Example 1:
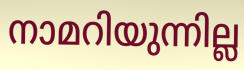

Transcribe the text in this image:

നാമറിയുന്നില്ല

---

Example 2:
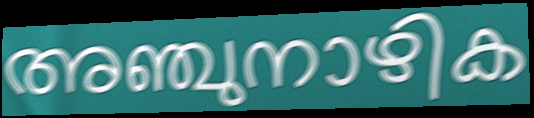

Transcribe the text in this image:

അഞ്ചുനാഴിക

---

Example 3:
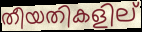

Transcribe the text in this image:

തീയതികളില്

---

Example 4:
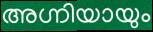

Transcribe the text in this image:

അഗ്നിയായും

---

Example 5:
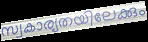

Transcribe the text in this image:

സ്വകാര്യതയിലേക്കും